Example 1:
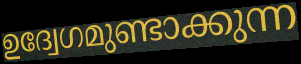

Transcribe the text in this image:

ഉദ്വേഗമുണ്ടാക്കുന്ന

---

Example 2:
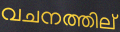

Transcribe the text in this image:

വചനത്തില്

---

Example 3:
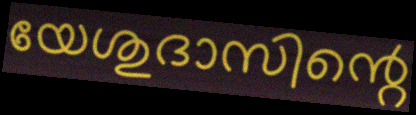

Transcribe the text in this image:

യേശുദാസിന്റെ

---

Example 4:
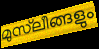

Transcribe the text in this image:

മുസ്‌ലീങ്ങളും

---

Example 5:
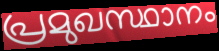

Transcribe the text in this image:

പ്രമുഖസ്ഥാനം